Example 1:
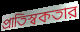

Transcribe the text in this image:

প্রাতিস্বকতার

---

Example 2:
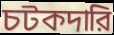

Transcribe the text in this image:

চটকদারি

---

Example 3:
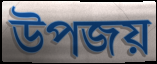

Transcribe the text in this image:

উপজয়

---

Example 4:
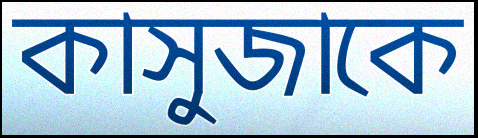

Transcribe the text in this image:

কাসুজাকে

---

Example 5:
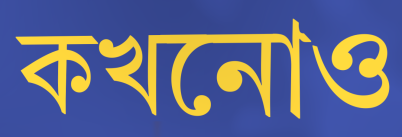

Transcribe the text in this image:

কখনোও